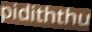
pidiththu